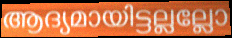
ആദ്യമായിട്ടല്ലല്ലോ